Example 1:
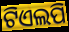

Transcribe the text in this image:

ଟିଏଲପି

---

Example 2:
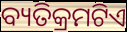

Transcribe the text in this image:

ବ୍ୟତିକ୍ରମଟିଏ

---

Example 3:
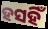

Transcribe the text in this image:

ହସହିଁ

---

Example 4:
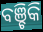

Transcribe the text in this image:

ବଞ୍ଚିକି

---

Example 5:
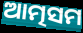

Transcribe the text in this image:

ଆତ୍ମସମ